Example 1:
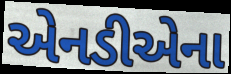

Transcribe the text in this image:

એનડીએના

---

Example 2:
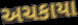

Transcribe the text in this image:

અચકાયા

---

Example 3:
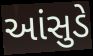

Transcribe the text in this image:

આંસુડે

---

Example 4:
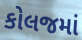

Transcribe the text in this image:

કોલજમાં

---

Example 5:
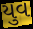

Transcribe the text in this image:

યુવ